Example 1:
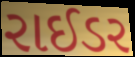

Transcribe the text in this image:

રાઈડર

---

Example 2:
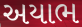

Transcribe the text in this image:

અયાભ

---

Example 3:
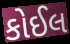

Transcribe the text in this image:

કોઈલ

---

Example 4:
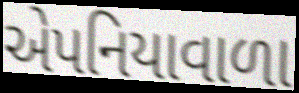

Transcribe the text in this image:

એપનિયાવાળા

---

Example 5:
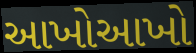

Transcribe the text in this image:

આખોઆખો